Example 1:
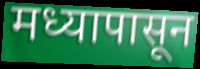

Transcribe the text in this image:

मध्यापासून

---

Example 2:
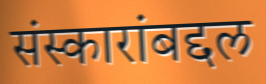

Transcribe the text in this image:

संस्कारांबद्दल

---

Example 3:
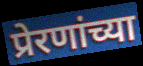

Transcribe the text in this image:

प्रेरणांच्या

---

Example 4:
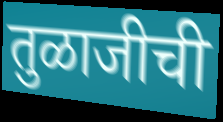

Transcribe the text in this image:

तुळाजीची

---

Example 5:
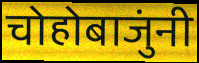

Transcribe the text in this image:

चोहोबाजुंनी